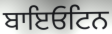
ਬਾਇਓਟਿਨ